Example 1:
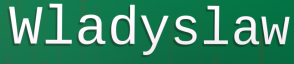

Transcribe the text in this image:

Wladyslaw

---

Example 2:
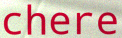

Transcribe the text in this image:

chere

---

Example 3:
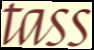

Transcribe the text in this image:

tass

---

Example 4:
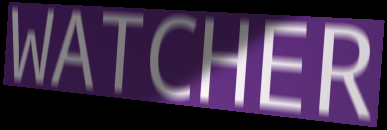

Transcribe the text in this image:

WATCHER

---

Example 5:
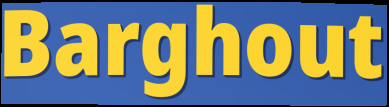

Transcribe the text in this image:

Barghout